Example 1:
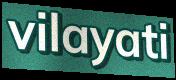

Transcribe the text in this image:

vilayati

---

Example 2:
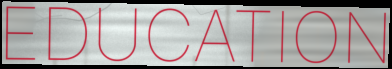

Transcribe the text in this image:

EDUCATION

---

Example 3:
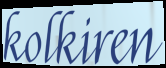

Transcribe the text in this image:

kolkiren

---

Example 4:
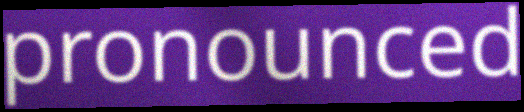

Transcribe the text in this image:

pronounced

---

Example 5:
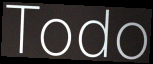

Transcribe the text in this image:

Todo